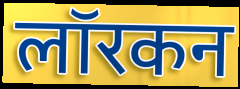
लॉरकन